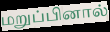
மறுப்பினால்